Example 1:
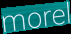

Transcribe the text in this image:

morel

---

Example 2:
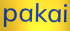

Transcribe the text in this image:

pakai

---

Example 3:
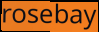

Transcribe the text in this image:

rosebay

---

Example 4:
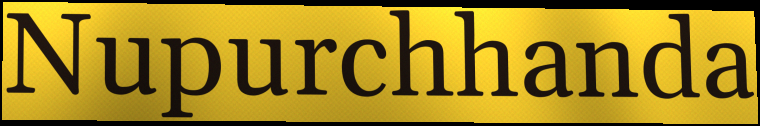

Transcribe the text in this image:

Nupurchhanda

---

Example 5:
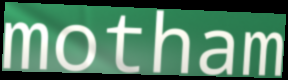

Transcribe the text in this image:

motham